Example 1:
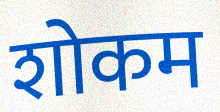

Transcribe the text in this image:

शोकम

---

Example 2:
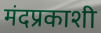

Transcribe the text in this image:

मंदप्रकाशी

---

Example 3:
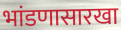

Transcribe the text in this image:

भांडणासारखा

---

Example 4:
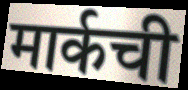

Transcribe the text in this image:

मार्कची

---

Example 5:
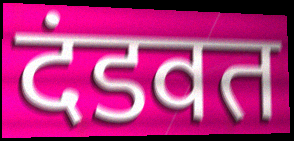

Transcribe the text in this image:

दंडवत